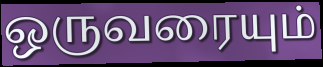
ஒருவரையும்